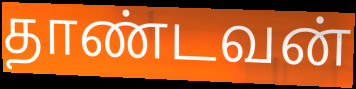
தாண்டவன்